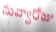
నువ్వారోజు